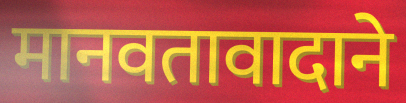
मानवतावादाने